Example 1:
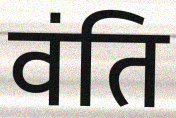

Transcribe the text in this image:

वंति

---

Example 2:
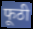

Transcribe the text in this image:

फूठी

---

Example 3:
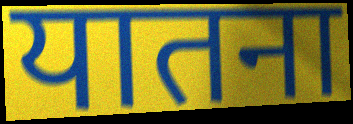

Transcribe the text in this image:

यातना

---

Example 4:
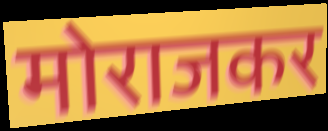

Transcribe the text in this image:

मोराजकर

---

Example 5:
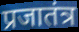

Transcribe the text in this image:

प्रजातंत्र